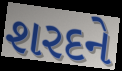
શરદને